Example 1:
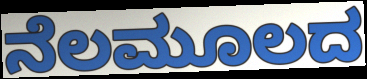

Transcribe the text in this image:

ನೆಲಮೂಲದ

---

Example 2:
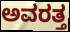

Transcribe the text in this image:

ಅವರತ್ತ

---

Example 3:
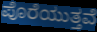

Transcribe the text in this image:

ಪೊರೆಯುತ್ತವೆ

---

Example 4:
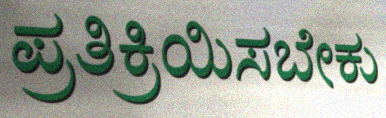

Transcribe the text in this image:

ಪ್ರತಿಕ್ರಿಯಿಸಬೇಕು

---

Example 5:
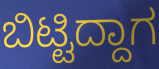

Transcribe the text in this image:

ಬಿಟ್ಟಿದ್ದಾಗ